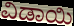
ವಿಡಾಯಿ